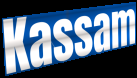
Kassam